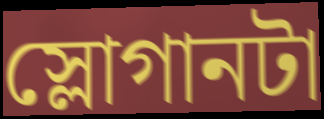
স্লোগানটা